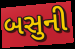
બસુની